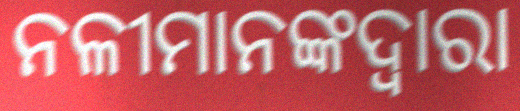
ନଳୀମାନଙ୍କଦ୍ୱାରା